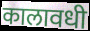
कालावधी